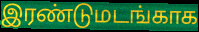
இரண்டுமடங்காக